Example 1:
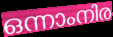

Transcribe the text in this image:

ഒന്നാംനിര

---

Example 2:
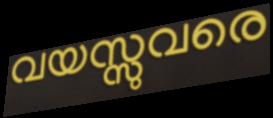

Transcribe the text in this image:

വയസ്സുവരെ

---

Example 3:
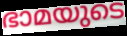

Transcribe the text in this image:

ഭാമയുടെ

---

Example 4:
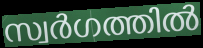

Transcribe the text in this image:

സ്വർഗത്തിൽ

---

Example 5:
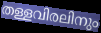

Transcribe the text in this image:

തള്ളവിരലിനും